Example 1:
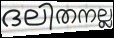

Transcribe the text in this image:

ദലിതനല്ല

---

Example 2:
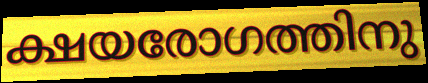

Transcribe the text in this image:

ക്ഷയരോഗത്തിനു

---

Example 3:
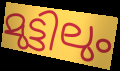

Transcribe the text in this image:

മുട്ടിലും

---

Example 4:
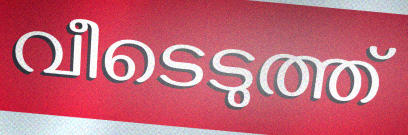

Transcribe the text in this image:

വീടെടുത്ത്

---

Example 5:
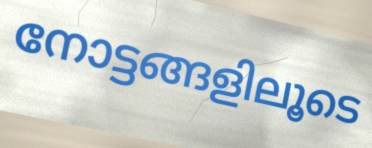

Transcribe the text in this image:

നോട്ടങ്ങളിലൂടെ